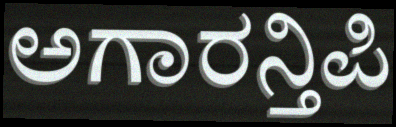
ಅಗಾರನ್ತಿಪಿ